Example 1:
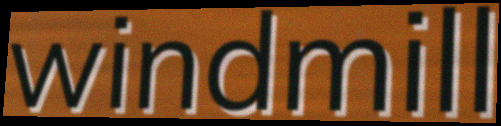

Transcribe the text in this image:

windmill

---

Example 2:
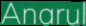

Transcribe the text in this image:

Anarul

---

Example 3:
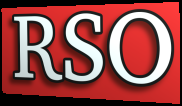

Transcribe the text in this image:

RSO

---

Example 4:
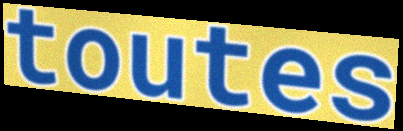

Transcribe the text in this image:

toutes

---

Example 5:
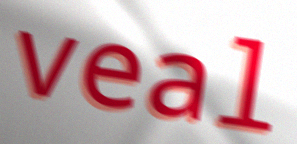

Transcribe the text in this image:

veal